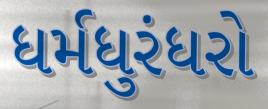
ધર્મધુરંધરો